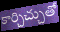
కార్చిచ్చుతో